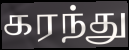
கரந்து